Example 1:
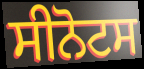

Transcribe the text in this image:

ਸੀਨੋਟਸ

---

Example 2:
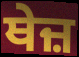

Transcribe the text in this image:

ਥੇਜ਼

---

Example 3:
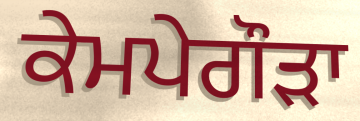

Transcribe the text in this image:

ਕੇਮਪੇਗੌੜਾ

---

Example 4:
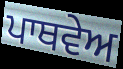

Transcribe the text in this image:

ਪਾਥਵੇਅ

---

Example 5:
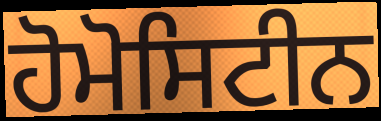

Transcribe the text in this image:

ਹੋਮੋਸਿਟੀਨ